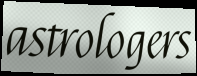
astrologers